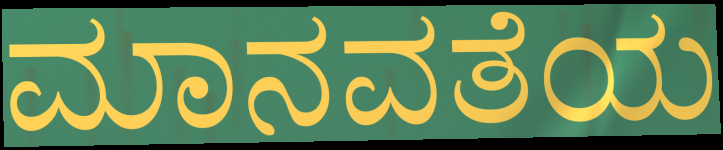
ಮಾನವತೆಯ